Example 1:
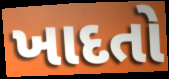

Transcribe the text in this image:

ખાદતો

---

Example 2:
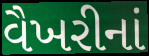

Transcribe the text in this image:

વૈખરીનાં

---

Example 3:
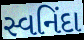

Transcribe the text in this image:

સ્વનિંદા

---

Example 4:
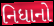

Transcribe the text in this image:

નિધાનો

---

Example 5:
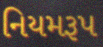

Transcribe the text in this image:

નિયમરૂપ